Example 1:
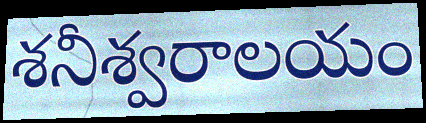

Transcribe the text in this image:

శనీశ్వరాలయం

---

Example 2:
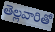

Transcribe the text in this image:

తెల్లవారితో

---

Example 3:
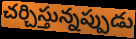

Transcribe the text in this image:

చర్చిస్తున్నప్పుడు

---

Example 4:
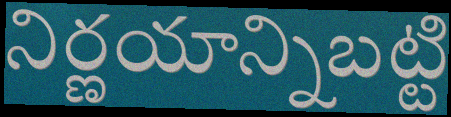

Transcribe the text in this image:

నిర్ణయాన్నిబట్టి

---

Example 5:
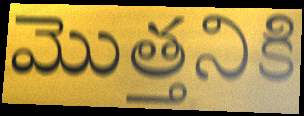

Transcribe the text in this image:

మొత్తనికి